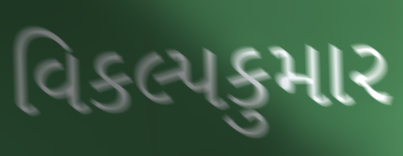
વિકલ્પકુમાર